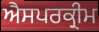
ਐਸਪਰਕ੍ਰੀਮ